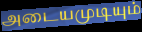
அடையமுடியும்